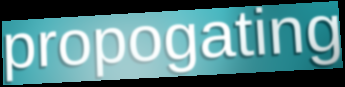
propogating